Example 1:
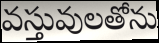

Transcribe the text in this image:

వస్తువులతోను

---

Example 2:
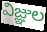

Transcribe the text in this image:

విజ్ఞుల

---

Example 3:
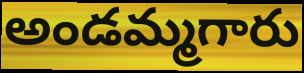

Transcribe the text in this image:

అండమ్మగారు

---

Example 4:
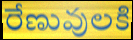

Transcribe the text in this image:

రేణువులకి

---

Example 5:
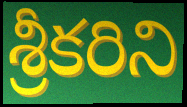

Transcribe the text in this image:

శ్రీకరిని